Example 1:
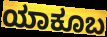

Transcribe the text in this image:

ಯಾಕೂಬ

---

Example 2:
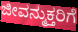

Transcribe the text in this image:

ಜೀವನ್ಮುಕ್ತರಿಗೆ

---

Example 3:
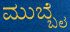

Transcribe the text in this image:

ಮುಬ್ಬೈ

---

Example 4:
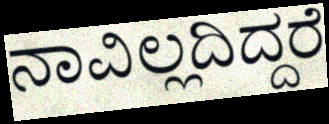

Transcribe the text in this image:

ನಾವಿಲ್ಲದಿದ್ದರೆ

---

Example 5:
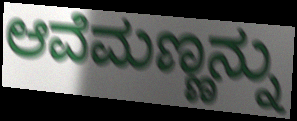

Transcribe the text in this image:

ಆವೆಮಣ್ಣನ್ನು